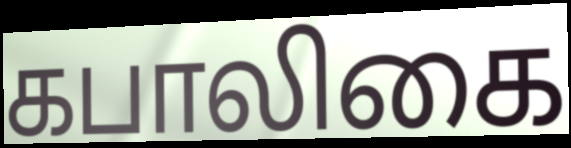
கபாலிகை